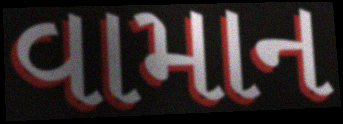
વામાન